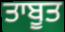
ਤਾਬੂਤ